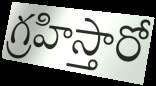
గ్రహిస్తారో